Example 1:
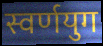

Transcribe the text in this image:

स्वर्णयुग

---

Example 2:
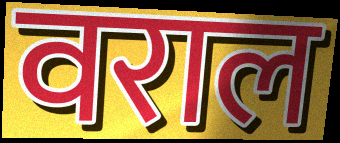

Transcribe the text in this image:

वराल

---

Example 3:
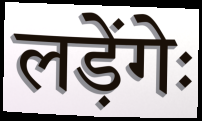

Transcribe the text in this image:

लड़ेंगेः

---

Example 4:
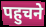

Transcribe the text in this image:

पहुचने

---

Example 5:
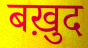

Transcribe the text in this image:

बख़ुद